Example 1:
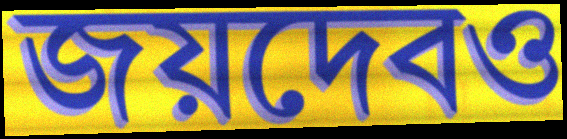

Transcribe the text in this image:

জয়দেবও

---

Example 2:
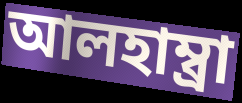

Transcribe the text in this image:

আলহাম্ব্রা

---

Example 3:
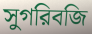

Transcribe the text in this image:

সুগরিবজি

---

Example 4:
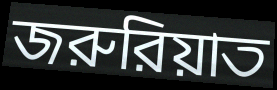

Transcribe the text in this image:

জরুরিয়াত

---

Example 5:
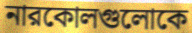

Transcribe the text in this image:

নারকোলগুলোকে